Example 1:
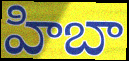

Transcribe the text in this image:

హిబా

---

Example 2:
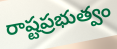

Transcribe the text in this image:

రాష్టప్రభుత్వం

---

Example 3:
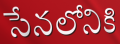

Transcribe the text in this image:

సేనలోనికి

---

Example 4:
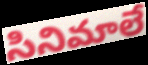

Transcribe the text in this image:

సినిమాలే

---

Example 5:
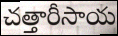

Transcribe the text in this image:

చత్తారీసాయ